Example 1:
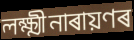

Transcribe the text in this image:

লক্ষ্মীনাৰায়ণৰ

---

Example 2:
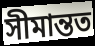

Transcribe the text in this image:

সীমান্তত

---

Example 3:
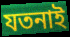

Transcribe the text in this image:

যতনাই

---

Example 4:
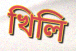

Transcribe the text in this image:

খিলি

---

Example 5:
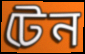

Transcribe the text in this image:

টেন